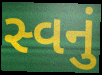
સ્વનું